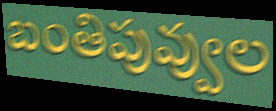
బంతిపువ్వుల